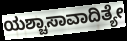
ಯಶ್ಚಾಸಾವಾದಿತ್ಯೇ